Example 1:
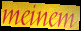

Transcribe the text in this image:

meinem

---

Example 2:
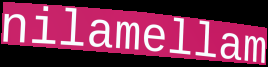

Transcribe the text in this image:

nilamellam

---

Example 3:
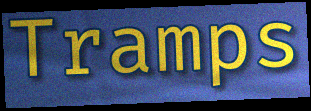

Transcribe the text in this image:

Tramps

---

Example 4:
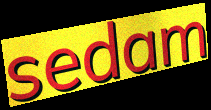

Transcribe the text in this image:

sedam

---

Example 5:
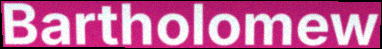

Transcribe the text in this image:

Bartholomew